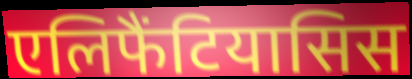
एलिफैंटियासिस